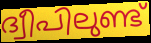
ദ്വീപിലുണ്ട്